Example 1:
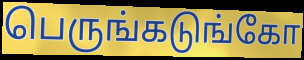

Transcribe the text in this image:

பெருங்கடுங்கோ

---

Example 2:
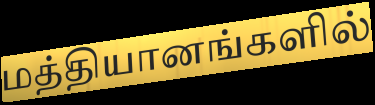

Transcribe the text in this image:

மத்தியானங்களில்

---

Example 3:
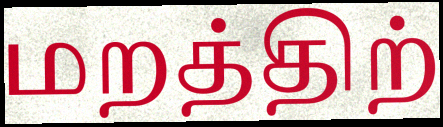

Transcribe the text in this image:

மறத்திற்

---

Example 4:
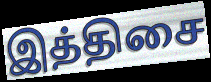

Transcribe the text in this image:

இத்திசை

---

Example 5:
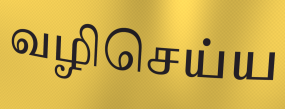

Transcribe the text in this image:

வழிசெய்ய